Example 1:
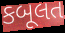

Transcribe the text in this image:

કબૂલત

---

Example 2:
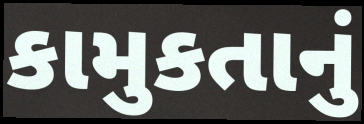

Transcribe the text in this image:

કામુકતાનું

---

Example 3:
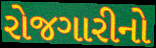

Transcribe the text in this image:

રોજગારીનો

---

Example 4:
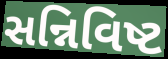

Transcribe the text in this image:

સન્નિવિષ્ટ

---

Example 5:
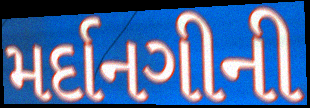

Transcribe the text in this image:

મર્દાનગીની